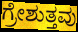
ಗ್ರೇಶುತ್ತವು